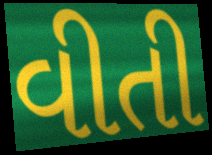
વીતી